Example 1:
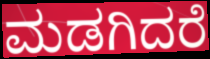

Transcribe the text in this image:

ಮಡಗಿದರೆ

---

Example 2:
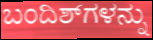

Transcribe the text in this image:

ಬಂದಿಶ್‌ಗಳನ್ನು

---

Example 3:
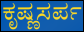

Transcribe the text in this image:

ಕೃಷ್ಣಸರ್ಪ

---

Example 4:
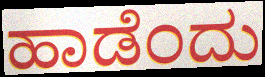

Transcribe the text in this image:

ಹಾಡೆಂದು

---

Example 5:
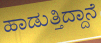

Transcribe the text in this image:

ಹಾಡುತ್ತಿದ್ದಾನೆ